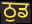
ਠੁਡ